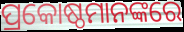
ପ୍ରକୋଷ୍ଠମାନଙ୍କରେ